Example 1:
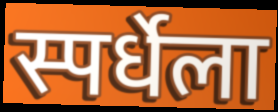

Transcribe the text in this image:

स्पर्धेला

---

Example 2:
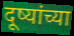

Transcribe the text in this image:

दूष्यांच्या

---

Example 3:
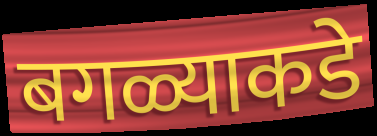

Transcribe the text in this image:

बगळ्याकडे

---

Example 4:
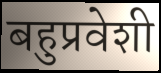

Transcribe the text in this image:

बहुप्रवेशी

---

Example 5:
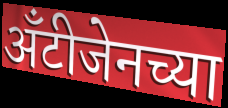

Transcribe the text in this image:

अँटीजेनच्या